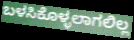
ಬಳಸಿಕೊಳ್ಳಲಾಗಲಿಲ್ಲ